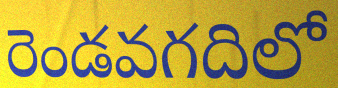
రెండవగదిలో